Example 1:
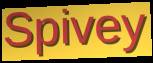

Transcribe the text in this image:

Spivey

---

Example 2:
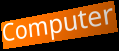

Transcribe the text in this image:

Computer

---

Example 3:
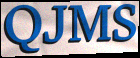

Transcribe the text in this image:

QJMS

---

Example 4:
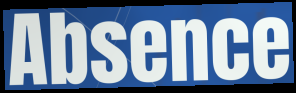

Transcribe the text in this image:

Absence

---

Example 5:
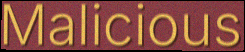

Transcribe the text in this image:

Malicious